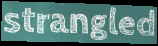
strangled